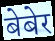
बेबेर